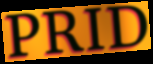
PRID